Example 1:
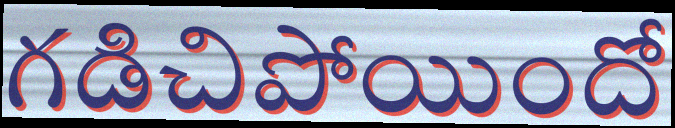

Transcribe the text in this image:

గడిచిపోయిందో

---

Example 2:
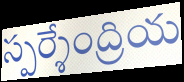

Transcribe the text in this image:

స్పర్శేంద్రియ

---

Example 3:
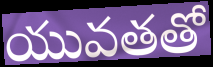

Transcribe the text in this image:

యువతతో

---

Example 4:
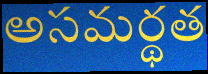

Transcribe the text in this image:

అసమర్థత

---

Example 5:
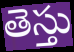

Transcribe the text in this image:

తెస్తు